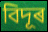
বিদূৰ